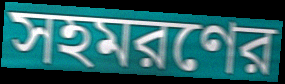
সহমরণের